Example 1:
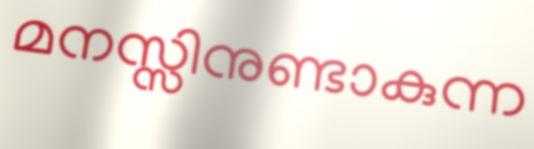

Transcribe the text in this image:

മനസ്സിനുണ്ടാകുന്ന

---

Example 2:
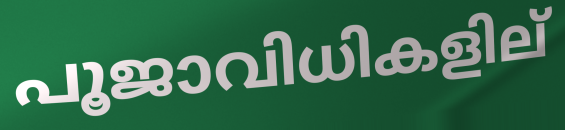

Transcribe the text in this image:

പൂജാവിധികളില്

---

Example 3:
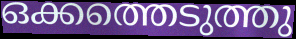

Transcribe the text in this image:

ഒക്കത്തെടുത്തു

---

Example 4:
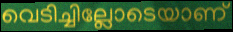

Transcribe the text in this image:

വെടിച്ചില്ലോടെയാണ്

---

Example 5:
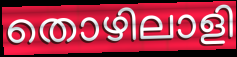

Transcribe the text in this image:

തൊഴിലാളി